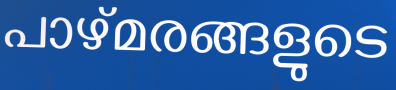
പാഴ്മരങ്ങളുടെ